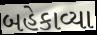
બહેકાવ્યા